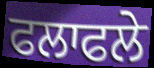
ਫਲਾਫਲੇ